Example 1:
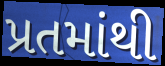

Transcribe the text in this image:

પ્રતમાંથી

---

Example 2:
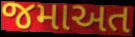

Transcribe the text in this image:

જમાઅત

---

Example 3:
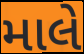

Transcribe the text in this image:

માલે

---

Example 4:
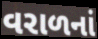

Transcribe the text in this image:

વરાળનાં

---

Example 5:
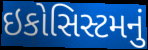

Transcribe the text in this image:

ઇકોસિસ્ટમનું